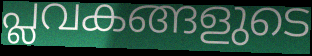
പ്ലവകങ്ങളുടെ